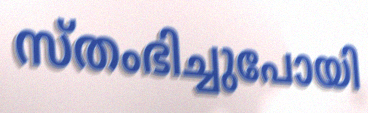
സ്തംഭിച്ചുപോയി